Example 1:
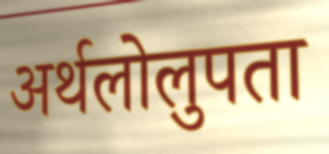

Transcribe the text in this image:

अर्थलोलुपता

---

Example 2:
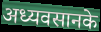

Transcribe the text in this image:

अध्यवसानके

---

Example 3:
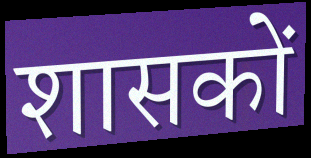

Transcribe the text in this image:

शासकों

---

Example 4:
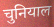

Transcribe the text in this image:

चुनियाल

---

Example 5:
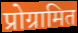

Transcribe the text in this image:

प्रोग्रामित